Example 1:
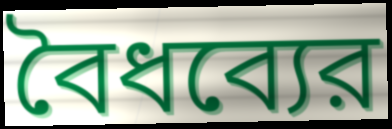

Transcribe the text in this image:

বৈধব্যের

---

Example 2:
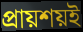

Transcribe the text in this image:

প্রায়শয়ই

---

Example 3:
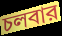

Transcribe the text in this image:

চলবার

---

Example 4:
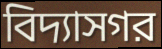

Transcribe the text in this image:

বিদ্যাসগর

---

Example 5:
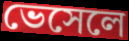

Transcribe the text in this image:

ভেসেলে